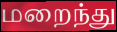
மறைந்து